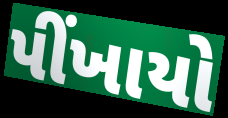
પીંખાયો